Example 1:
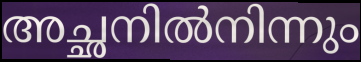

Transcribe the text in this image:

അച്ഛനിൽനിന്നും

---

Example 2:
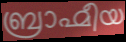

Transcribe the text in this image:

ബ്രാഹ്മീയ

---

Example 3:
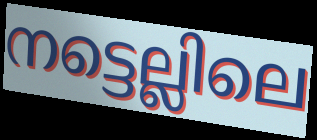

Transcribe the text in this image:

നട്ടെല്ലിലെ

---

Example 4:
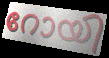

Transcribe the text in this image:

റോയി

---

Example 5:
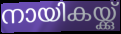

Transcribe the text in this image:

നായികയ്ക്കു്